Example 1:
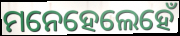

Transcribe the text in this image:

ମନେହେଲେହେଁ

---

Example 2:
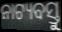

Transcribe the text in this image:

ନାଟ୍ୟବସ୍ତୁ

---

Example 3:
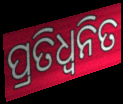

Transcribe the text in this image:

ପ୍ରତିଧ୍ଵନିତ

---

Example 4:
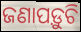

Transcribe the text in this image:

ଜଣାପଡ଼ୁଚି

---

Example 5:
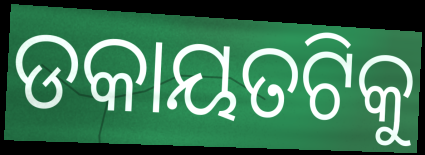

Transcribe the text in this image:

ଡକାୟତଟିକୁ